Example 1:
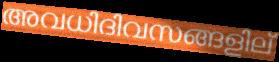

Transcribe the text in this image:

അവധിദിവസങ്ങളില്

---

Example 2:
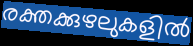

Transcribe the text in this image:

രക്തക്കുഴലുകളിൽ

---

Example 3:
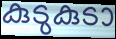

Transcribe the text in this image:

കുടുകുടാ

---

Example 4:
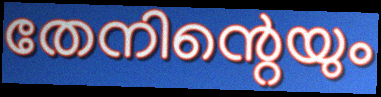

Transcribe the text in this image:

തേനിന്റെയും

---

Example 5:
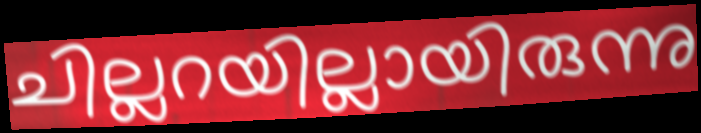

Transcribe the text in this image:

ചില്ലറയില്ലായിരുന്നു